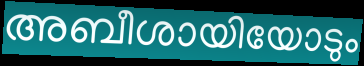
അബീശായിയോടും